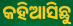
କହିଆସିଛୁ